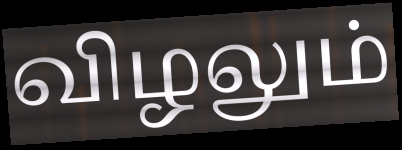
விழலும்